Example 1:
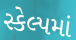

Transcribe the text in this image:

સ્કેલ્પમાં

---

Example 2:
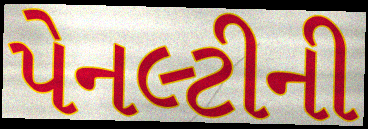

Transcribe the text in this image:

પેનલ્ટીની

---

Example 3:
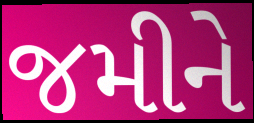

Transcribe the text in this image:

જમીને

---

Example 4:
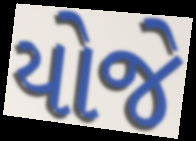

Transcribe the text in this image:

યોજે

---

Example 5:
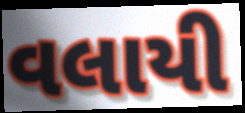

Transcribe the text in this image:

વલાયી